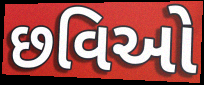
છવિઓ